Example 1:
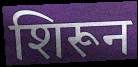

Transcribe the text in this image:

शिरून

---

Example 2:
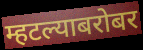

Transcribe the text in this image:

म्हटल्याबरोबर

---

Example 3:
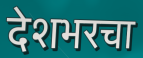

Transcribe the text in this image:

देशभरचा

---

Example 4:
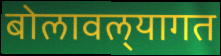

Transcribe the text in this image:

बोलावल्यागत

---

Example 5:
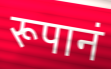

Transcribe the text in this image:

रूपानं